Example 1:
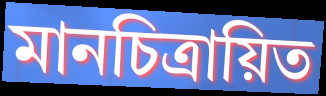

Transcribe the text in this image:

মানচিত্রায়িত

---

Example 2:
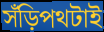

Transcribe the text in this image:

সঁড়িপথটাই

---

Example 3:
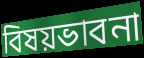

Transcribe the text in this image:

বিষয়ভাবনা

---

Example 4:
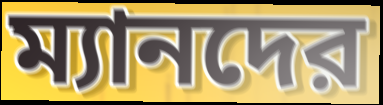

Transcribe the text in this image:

ম্যানদের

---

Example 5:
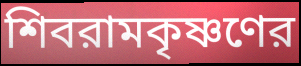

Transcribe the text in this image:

শিবরামকৃষ্ণণের